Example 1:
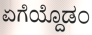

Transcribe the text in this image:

ಏಗೆಯ್ದೊಡಂ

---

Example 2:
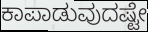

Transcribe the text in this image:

ಕಾಪಾಡುವುದಷ್ಟೇ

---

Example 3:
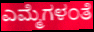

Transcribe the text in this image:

ಎಮ್ಮೆಗಳಂತೆ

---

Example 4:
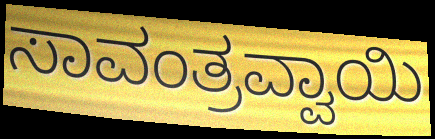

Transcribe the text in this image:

ಸಾವಂತ್ರವ್ವಾಯಿ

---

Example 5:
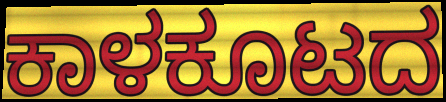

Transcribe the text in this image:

ಕಾಳಕೂಟದ